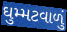
ઘુમ્મટવાળું